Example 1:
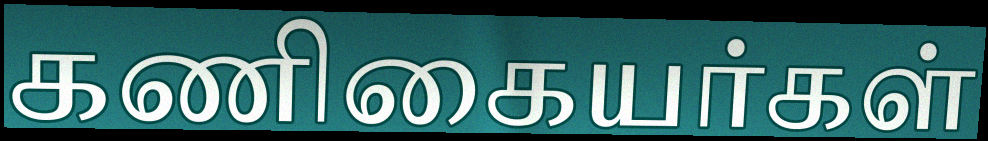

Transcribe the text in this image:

கணிகையர்கள்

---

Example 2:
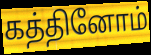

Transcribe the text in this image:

கத்தினோம்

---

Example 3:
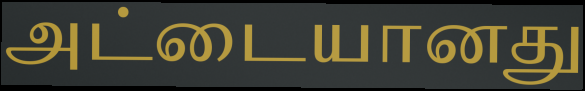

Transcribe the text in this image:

அட்டையானது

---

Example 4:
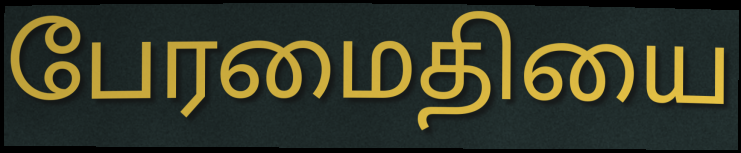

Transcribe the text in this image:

பேரமைதியை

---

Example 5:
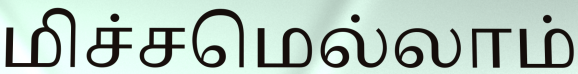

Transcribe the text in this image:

மிச்சமெல்லாம்